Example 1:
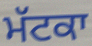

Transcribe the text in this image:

ਮੱਟਕਾ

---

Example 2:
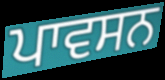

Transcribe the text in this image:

ਪਾਵਸਨ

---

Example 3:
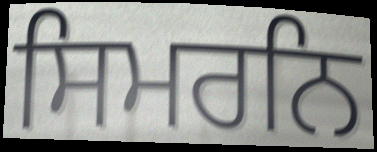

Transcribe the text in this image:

ਸਿਮਰਨਿ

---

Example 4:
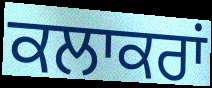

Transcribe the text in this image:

ਕਲਾਕਰਾਂ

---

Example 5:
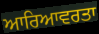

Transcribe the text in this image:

ਆਰਿਆਵਰਤਾ